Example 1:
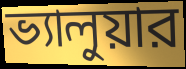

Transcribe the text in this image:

ভ্যালুয়ার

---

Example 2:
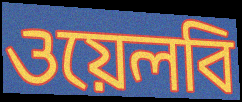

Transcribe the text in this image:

ওয়েলবি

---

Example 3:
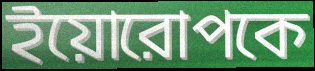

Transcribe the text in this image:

ইয়োরোপকে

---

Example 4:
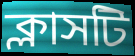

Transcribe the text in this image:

ক্লাসটি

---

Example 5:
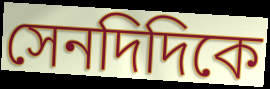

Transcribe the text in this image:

সেনদিদিকে